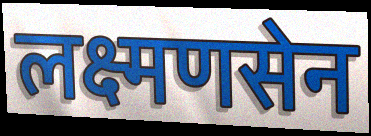
लक्ष्मणसेन